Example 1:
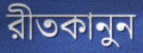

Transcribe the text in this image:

রীতকানুন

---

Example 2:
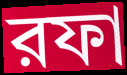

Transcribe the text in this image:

রফা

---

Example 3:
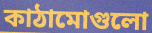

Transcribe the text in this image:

কাঠামোগুলো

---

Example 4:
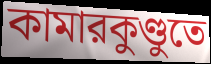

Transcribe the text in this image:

কামারকুণ্ডুতে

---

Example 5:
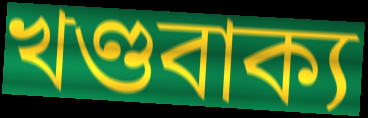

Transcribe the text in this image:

খণ্ডবাক্য